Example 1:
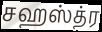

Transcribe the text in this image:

சஹஸ்த்ர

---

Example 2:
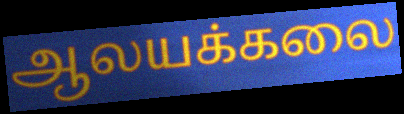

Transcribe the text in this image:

ஆலயக்கலை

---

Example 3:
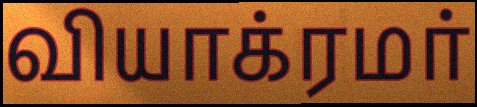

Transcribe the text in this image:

வியாக்ரமர்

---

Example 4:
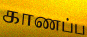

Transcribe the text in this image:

காணப்ப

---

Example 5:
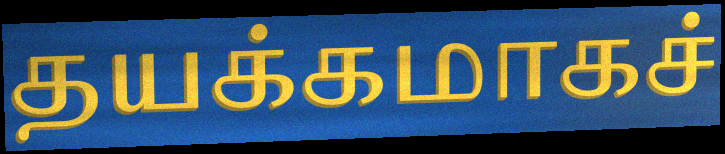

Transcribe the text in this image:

தயக்கமாகச்